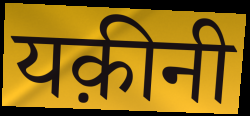
यक़ीनी